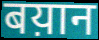
बय़ान